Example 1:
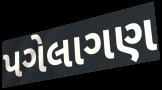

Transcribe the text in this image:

પગેલાગણ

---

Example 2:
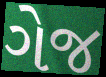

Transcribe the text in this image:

ગેજ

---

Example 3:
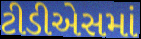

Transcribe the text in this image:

ટીડીએસમાં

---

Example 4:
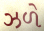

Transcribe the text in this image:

ઝળે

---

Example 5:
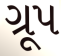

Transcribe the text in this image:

ગ્રૂપ